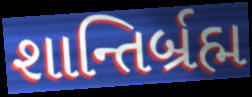
શાન્તિર્બ્રહ્મ